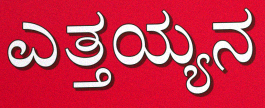
ಎತ್ತಯ್ಯನ